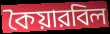
কৈয়ারবিল